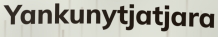
Yankunytjatjara